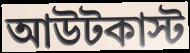
আউটকাস্ট